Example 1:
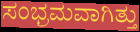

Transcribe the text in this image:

ಸಂಭ್ರಮವಾಗಿತ್ತು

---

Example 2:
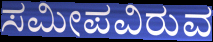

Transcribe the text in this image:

ಸಮೀಪವಿರುವ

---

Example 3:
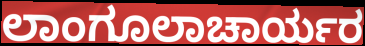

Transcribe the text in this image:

ಲಾಂಗೂಲಾಚಾರ್ಯರ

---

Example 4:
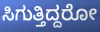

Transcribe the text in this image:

ಸಿಗುತ್ತಿದ್ದರೋ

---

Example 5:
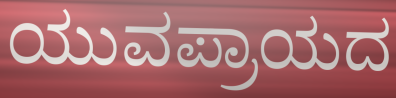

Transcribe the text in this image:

ಯುವಪ್ರಾಯದ